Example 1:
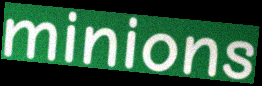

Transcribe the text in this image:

minions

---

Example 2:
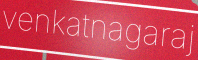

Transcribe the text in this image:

venkatnagaraj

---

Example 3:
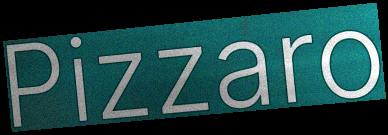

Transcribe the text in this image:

Pizzaro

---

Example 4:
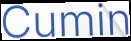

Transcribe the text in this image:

Cumin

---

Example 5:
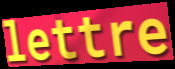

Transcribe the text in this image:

lettre